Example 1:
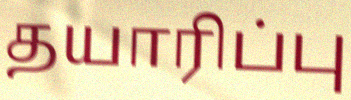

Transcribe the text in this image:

தயாரிப்பு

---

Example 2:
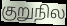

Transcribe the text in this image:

குறுநில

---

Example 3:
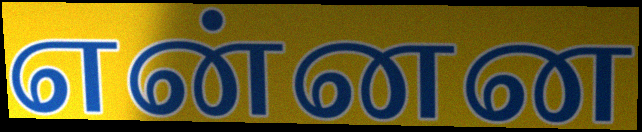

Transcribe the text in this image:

என்னன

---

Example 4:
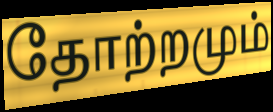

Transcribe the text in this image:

தோற்றமும்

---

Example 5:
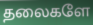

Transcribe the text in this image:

தலைகளே